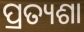
ପ୍ରତ୍ୟଶା